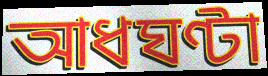
আধঘণ্টা